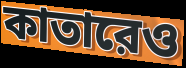
কাতারেও